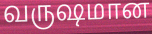
வருஷமான